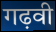
गढ़वी